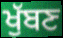
ਖੁੱਬਣ